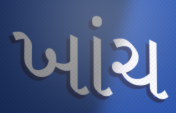
ખાંચ